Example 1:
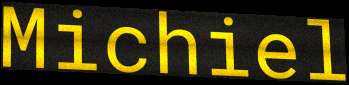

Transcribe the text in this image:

Michiel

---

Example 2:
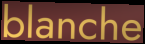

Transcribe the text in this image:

blanche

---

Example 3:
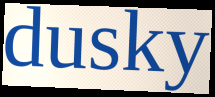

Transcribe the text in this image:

dusky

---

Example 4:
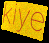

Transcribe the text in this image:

kiye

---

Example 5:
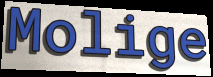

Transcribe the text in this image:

Molige